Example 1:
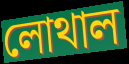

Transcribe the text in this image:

লোথাল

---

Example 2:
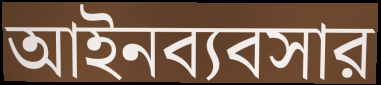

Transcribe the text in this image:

আইনব্যবসার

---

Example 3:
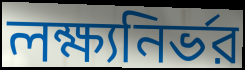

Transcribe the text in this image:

লক্ষ্যনির্ভর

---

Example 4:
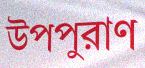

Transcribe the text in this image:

উপপুরাণ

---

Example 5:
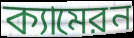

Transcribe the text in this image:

ক্যামেরন